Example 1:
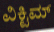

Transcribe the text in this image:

ವಿಕ್ಟಿಮ್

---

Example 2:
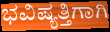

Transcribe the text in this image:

ಭವಿಷ್ಯತ್ತಿಗಾಗಿ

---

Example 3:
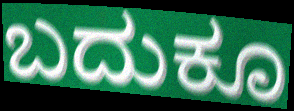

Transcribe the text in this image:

ಬದುಕೂ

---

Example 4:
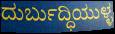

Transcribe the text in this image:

ದುರ್ಬುದ್ಧಿಯುಳ್ಳ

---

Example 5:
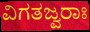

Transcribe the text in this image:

ವಿಗತಜ್ವರಾಃ